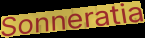
Sonneratia